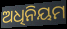
ଅଧିନିୟମ